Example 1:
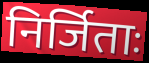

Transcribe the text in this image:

निर्जिताः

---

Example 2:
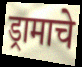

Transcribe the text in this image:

ड्रामाचे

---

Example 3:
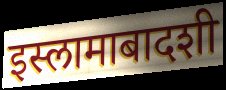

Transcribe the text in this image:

इस्लामाबादशी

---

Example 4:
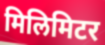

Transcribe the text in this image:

मिलिमिटर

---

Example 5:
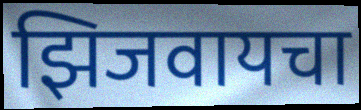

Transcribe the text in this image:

झिजवायचा